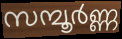
സമ്പൂർണ്ണ